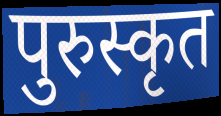
पुरुस्कृत